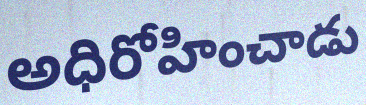
అధిరోహించాడు